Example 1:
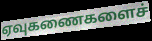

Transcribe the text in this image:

ஏவுகணைகளைச்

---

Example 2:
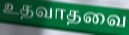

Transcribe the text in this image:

உதவாதவை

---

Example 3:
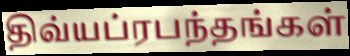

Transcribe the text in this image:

திவ்யப்ரபந்தங்கள்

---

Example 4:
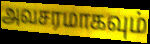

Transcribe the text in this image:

அவசரமாகவும்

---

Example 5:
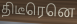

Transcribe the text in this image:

திடீரெனெ